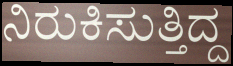
ನಿರುಕಿಸುತ್ತಿದ್ದ